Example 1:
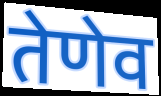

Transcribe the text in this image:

तेणेव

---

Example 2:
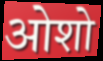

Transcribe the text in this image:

ओशो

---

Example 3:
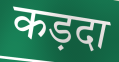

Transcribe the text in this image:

कड़दा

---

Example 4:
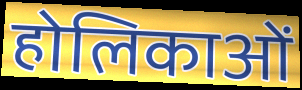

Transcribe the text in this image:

होलिकाओं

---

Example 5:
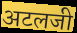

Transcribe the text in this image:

अटलजी